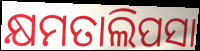
କ୍ଷମତାଲିପସା